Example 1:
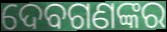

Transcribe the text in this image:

ଦେବଗଣଙ୍କର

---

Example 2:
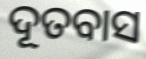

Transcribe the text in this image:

ଦୂତବାସ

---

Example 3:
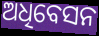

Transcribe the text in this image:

ଅଧିବେସନ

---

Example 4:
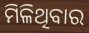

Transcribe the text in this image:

ମିଳିଥିବାର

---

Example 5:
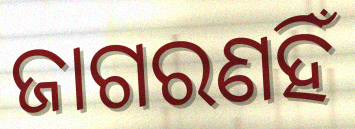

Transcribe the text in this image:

ଜାଗରଣହିଁ